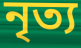
নৃত্য